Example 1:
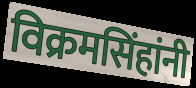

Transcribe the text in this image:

विक्रमसिंहांनी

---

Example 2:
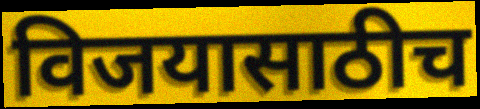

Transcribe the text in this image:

विजयासाठीच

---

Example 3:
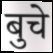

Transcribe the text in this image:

बुचे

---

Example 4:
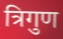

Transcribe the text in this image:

त्रिगुण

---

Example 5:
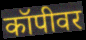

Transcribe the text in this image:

कॉपीवर